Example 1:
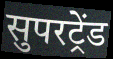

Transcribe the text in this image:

सुपरट्रेंड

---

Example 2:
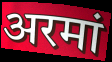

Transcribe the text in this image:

अरमां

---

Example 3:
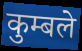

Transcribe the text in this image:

कुम्बले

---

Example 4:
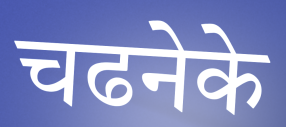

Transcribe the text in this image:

चढनेके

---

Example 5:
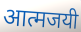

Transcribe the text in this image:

आत्मजयी